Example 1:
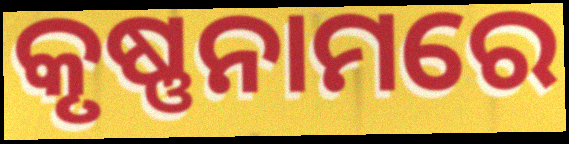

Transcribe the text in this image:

କୃଷ୍ଣନାମରେ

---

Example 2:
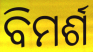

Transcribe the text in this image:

ବିମର୍ଶ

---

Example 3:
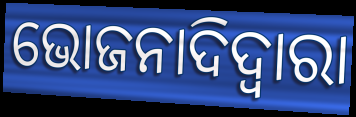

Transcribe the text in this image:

ଭୋଜନାଦିଦ୍ୱାରା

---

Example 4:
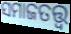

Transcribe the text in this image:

ସମାଜତତ୍ତ୍ୱ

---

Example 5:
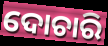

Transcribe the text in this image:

ଦୋଚାରି